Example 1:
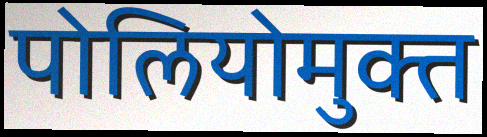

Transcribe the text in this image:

पोलियोमुक्त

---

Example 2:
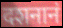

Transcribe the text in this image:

दशनानं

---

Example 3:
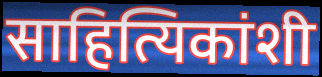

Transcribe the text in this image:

साहित्यिकांशी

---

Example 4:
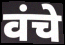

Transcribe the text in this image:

वंचे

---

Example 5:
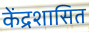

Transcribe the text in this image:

केंद्रशासित